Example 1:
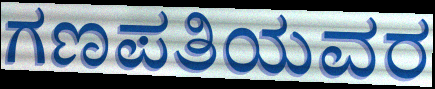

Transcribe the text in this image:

ಗಣಪತಿಯವರ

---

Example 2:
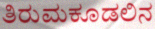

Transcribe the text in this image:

ತಿರುಮಕೂಡಲಿನ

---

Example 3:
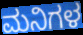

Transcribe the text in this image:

ಮನಿಗಳ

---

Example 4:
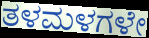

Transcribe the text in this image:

ತಳಮಳಗಳೇ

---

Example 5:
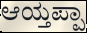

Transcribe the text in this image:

ಆಯ್ತಪ್ಪಾ